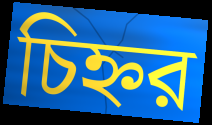
চিহ্নর